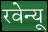
रवेन्यू